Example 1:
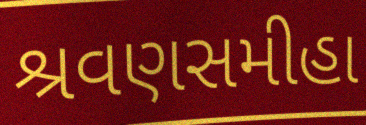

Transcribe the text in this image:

શ્રવણસમીહા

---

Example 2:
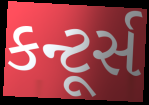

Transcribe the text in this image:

કન્ટૂર્સ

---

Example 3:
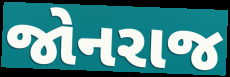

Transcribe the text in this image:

જોનરાજ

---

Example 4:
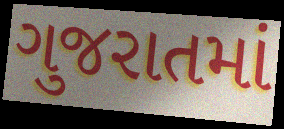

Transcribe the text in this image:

ગુજરાતમાં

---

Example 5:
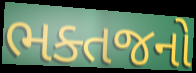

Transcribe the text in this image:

ભક્તજનો